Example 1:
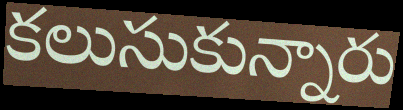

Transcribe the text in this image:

కలుసుకున్నారు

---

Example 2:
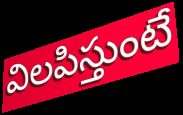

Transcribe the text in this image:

విలపిస్తుంటే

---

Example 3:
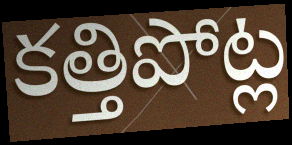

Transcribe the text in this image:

కత్తిపోట్ల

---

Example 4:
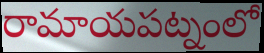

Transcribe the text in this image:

రామాయపట్నంలో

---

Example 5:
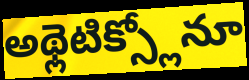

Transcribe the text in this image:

అథ్లెటిక్స్లోనూ